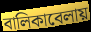
বালিকাবেলায়